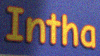
Intha